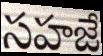
సహజే